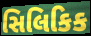
સિલિકિક